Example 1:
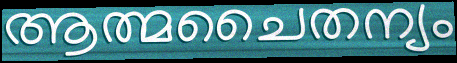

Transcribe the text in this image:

ആത്മചൈതന്യം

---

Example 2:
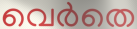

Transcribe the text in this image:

വെർതെ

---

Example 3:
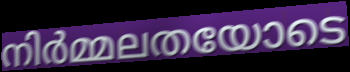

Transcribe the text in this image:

നിർമ്മലതയോടെ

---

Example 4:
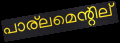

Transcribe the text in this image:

പാര്ലമെന്റില്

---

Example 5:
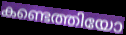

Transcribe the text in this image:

കണ്ടെത്തിയോ